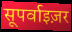
सूपर्वाइज़र